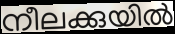
നീലക്കുയിൽ